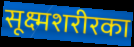
सूक्ष्मशरीरका